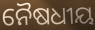
ନୈଷଧୀୟ